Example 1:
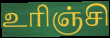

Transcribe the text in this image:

உரிஞ்சி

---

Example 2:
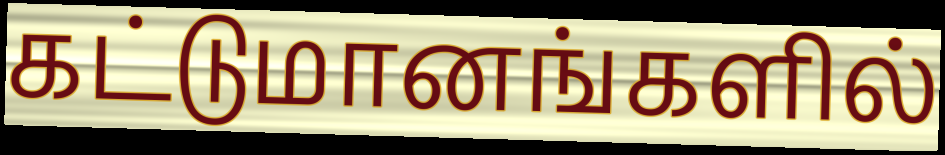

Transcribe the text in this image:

கட்டுமானங்களில்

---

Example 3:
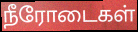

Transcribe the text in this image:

நீரோடைகள்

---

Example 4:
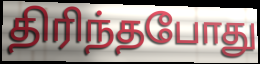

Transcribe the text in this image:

திரிந்தபோது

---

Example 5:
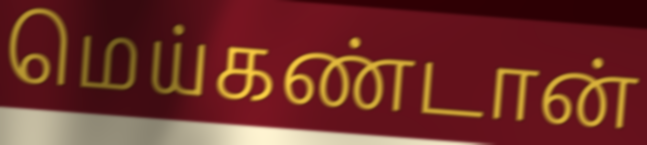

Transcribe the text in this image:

மெய்கண்டான்